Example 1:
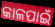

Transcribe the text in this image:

କାଳପାଇଁ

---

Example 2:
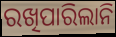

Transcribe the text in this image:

ରଖିପାରିଲାନି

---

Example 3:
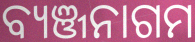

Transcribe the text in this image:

ବ୍ୟଞ୍ଜନାଗମ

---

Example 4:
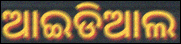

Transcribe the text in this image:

ଆଇଡିଆଲ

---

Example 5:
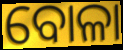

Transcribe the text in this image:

ବୋଳା